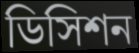
ডিসিশন